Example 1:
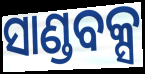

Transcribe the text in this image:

ସାଣ୍ଡବକ୍ସ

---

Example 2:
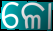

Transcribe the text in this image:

ଳୋ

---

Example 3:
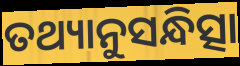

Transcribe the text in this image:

ତଥ୍ୟାନୁସନ୍ଧିତ୍ସା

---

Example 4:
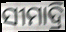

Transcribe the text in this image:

ସୀମାଦ୍ରି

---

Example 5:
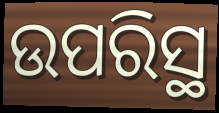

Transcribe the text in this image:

ଉପରିସ୍ଥ